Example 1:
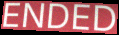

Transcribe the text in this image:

ENDED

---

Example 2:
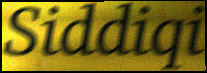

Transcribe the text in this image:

Siddiqi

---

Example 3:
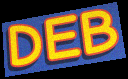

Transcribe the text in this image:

DEB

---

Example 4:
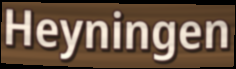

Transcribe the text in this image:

Heyningen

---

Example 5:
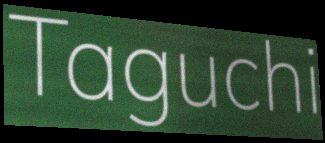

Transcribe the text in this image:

Taguchi